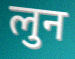
लुन